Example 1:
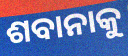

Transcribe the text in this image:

ଶବାନାକୁ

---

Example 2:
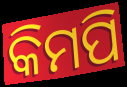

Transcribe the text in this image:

କିମପି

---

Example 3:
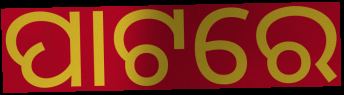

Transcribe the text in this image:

ପାଟରେ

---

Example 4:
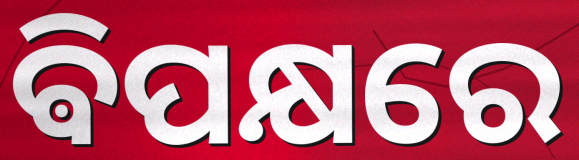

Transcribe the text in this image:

ଵିପକ୍ଷରେ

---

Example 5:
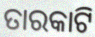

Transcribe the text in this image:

ତାରକାଟି